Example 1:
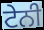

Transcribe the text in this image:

ਟੇਨੀ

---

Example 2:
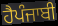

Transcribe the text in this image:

ਹੈਪੰਜਾਬੀ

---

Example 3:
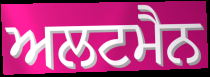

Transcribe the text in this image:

ਅਲਟਮੈਨ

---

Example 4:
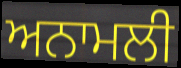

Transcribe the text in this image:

ਅਨਾਮਲੀ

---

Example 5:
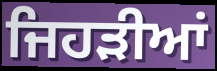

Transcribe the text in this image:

ਜਿਹੜੀਆਂ